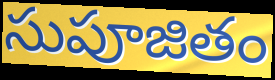
సుపూజితం